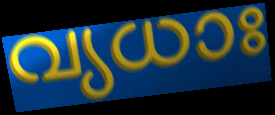
വ്യധാഃ